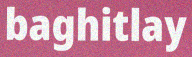
baghitlay